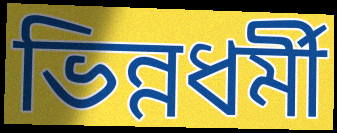
ভিন্নধৰ্মী